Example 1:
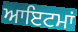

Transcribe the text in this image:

ਆਇਟਮਾਂ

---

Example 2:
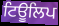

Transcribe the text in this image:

ਟਿਊਲਿਪ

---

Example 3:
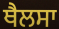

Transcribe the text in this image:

ਥੈਲਸਾ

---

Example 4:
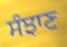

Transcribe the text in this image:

ਸੰਝਾਣ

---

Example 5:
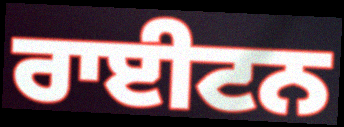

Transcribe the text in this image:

ਰਾਈਟਨ